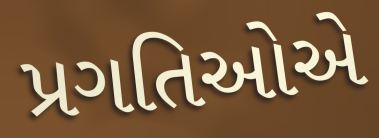
પ્રગતિઓએ